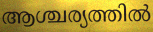
ആശ്ചര്യത്തിൽ